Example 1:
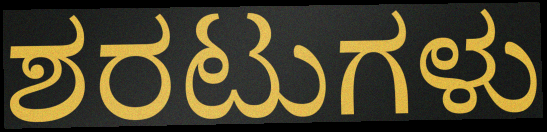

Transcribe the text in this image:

ಶರಟುಗಳು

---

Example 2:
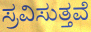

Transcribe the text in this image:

ಸ್ರವಿಸುತ್ತವೆ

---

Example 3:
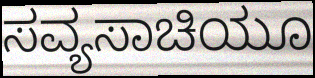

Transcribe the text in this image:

ಸವ್ಯಸಾಚಿಯೂ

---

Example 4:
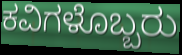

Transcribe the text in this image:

ಕವಿಗಳೊಬ್ಬರು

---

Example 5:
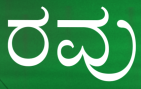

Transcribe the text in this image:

ರವು